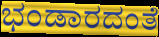
ಭಂಡಾರದಂತೆ